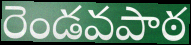
రెండవపాఠ